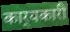
कार्यकारी